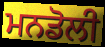
ਮਨਡੋਲੀ